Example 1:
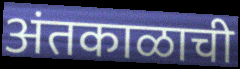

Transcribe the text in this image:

अंतकाळाची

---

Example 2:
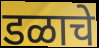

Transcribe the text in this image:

डळाचे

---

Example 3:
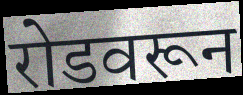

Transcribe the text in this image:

रोडवरून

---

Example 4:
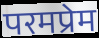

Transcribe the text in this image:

परमप्रेम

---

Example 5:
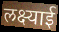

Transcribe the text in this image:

लक्ष्याई